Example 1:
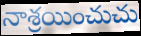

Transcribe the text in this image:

నాశ్రయించుచు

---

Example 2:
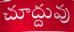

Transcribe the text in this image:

చూద్దువు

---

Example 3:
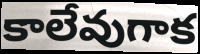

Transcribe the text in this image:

కాలేవుగాక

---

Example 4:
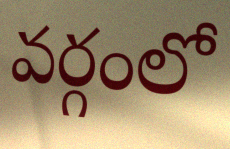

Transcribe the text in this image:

వర్గంలో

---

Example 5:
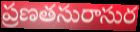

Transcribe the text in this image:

ప్రణతసురాసుర